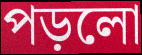
পড়লো